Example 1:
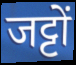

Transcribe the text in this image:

जट्टों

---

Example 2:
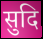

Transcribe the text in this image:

सुदि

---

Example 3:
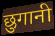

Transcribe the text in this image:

छुगानी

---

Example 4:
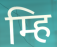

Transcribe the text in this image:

म्हि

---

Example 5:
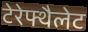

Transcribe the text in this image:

टेरेफ्थैलेट